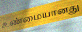
உண்மையானது